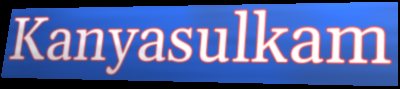
Kanyasulkam